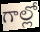
గాల్లో